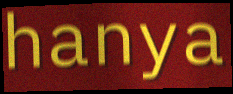
hanya